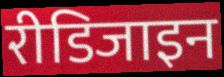
रीडिजाइन